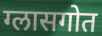
ग्लासगोत